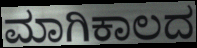
ಮಾಗಿಕಾಲದ